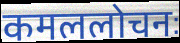
कमललोचनः